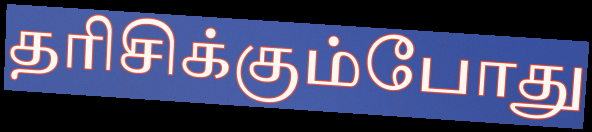
தரிசிக்கும்போது